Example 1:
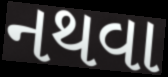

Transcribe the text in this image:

નથવા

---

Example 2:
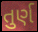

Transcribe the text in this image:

તુર્ણ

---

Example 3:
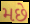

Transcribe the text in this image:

મછે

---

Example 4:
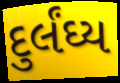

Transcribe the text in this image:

દુર્લંઘ્ય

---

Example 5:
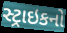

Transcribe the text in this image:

સ્ટ્રાઇકનો